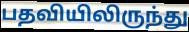
பதவியிலிருந்து